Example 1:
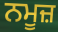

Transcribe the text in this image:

ਨਮੂਜ਼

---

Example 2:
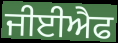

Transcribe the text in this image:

ਜੀਈਐਫ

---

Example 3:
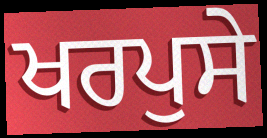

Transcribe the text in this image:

ਖਰਪੁਸੇ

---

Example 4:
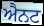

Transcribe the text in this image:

ਐਨਟ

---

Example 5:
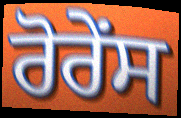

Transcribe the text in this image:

ਰੋਰੇਂਸ